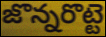
జొన్నరొట్టె